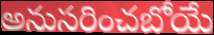
అనుసరించబోయే